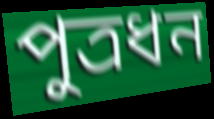
পুত্রধন